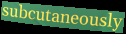
subcutaneously